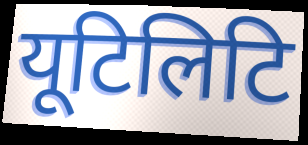
यूटिलिटि